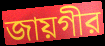
জায়গীর